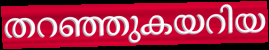
തറഞ്ഞുകയറിയ